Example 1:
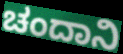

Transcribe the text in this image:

ಚಂದಾನಿ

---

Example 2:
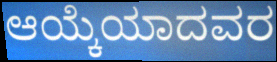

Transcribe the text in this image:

ಆಯ್ಕೆಯಾದವರ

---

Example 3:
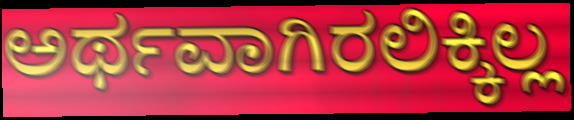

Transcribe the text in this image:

ಅರ್ಥವಾಗಿರಲಿಕ್ಕಿಲ್ಲ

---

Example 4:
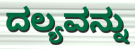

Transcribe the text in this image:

ದಲ್ಯವನ್ನು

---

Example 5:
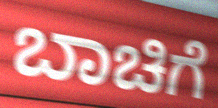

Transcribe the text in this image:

ಬಾಚಿಗೆ